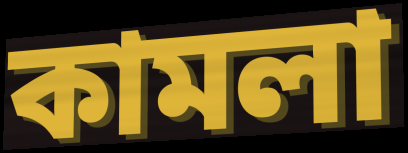
কামলা